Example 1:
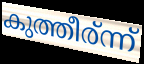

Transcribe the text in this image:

കുത്തീര്ന്ന്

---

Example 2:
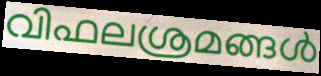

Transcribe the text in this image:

വിഫലശ്രമങ്ങൾ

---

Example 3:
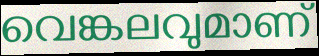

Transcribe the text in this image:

വെങ്കലവുമാണ്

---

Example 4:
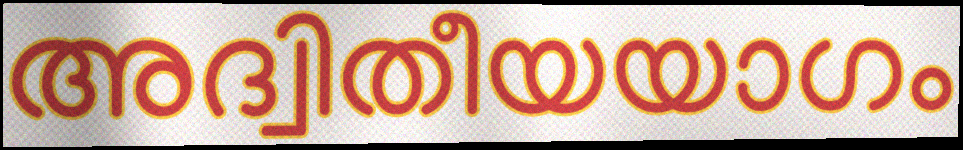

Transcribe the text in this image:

അദ്വിതീയയാഗം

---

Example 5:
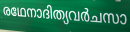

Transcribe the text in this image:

രഥേനാദിത്യവർചസാ